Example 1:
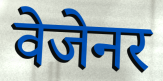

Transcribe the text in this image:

वेजेनर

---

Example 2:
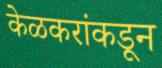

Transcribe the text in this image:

केळकरांकडून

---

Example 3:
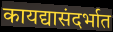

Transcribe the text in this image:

कायद्यासंदर्भात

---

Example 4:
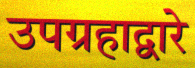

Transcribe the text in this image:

उपग्रहाद्वारे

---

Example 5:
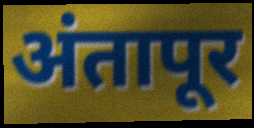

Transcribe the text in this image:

अंतापूर